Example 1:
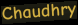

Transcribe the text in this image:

Chaudhry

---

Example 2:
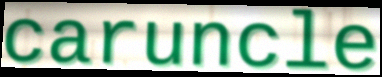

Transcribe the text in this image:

caruncle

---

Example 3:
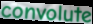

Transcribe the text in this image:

convolute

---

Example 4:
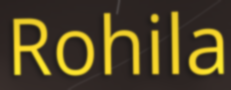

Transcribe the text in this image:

Rohila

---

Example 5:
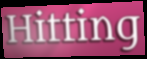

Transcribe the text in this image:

Hitting